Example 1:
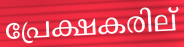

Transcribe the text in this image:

പ്രേക്ഷകരില്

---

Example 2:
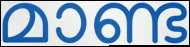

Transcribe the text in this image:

മാണ്ട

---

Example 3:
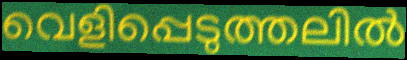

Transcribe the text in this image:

വെളിപ്പെടുത്തലിൽ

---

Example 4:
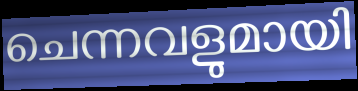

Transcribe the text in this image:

ചെന്നവളുമായി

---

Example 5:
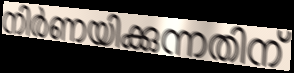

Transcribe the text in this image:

നിർണയിക്കുന്നതിന്